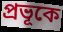
প্রভূকে